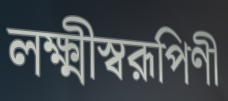
লক্ষ্মীস্বরূপিণী